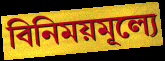
বিনিময়মূল্যে